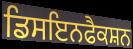
ਡਿਸਇਨਫੈਕਸ਼ਨ